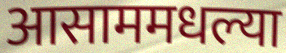
आसाममधल्या